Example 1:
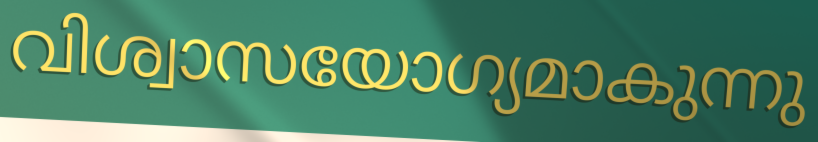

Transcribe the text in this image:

വിശ്വാസയോഗ്യമാകുന്നു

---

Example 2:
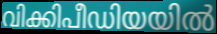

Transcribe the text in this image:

വിക്കിപീഡിയയിൽ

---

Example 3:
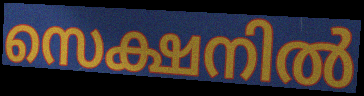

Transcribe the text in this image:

സെക്ഷനിൽ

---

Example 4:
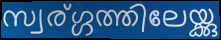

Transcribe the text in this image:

സ്വര്ഗ്ഗത്തിലേയ്ക്കു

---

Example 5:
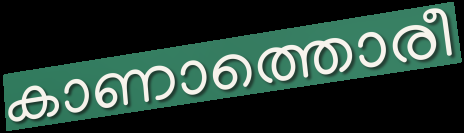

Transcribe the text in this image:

കാണാത്തൊരീ